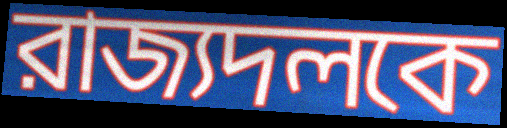
রাজ্যদলকে